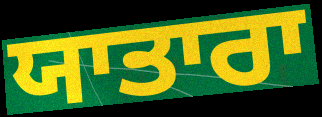
ਯਾਤਾਰਾ